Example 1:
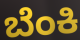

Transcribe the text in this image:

ಬೆಂಕಿ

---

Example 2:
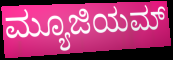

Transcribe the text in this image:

ಮ್ಯೂಜಿಯಮ್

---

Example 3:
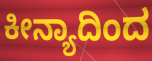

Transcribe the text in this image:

ಕೀನ್ಯಾದಿಂದ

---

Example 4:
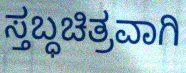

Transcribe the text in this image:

ಸ್ತಬ್ಧಚಿತ್ರವಾಗಿ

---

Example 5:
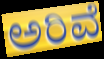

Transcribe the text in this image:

ಅರಿವೆ